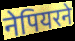
नेपियरने